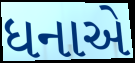
ધનાએ